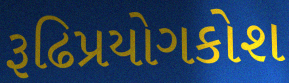
રૂઢિપ્રયોગકોશ